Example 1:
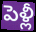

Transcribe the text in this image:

పెళ్లీ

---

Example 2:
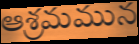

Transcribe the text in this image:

ఆశ్రమమున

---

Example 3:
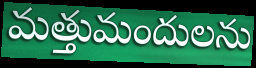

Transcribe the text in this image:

మత్తుమందులను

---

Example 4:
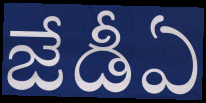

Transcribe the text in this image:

జేడీఏ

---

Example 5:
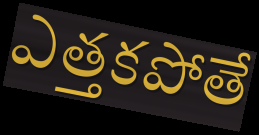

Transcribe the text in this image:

ఎత్తకపోతే